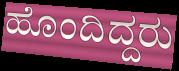
ಹೊಂದಿದ್ದರು